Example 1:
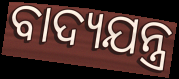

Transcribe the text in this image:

ବାଦ୍ୟଯନ୍ତ୍ର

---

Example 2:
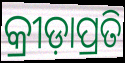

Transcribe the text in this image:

କ୍ରୀଡ଼ାପ୍ରତି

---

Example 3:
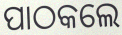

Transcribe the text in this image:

ପାଠକଲେ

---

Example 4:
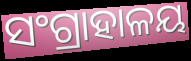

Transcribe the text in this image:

ସଂଗ୍ରାହାଳୟ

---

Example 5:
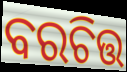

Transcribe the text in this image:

ବରଚିତ୍ତ